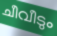
ചീവീടും